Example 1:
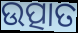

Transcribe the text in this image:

ଉତ୍ପାତ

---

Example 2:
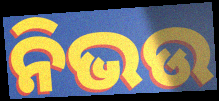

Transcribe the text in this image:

ନିଭଉ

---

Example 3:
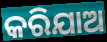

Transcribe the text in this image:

କରିଯାଅ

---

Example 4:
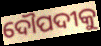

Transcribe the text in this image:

ଦୌପଦୀକୁ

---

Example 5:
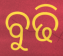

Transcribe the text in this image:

ବୁଢି